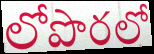
లోపొరలో